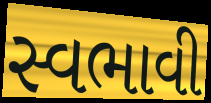
સ્વભાવી